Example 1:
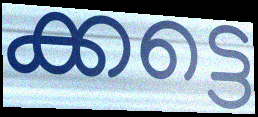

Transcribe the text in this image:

ക്കട്ടെ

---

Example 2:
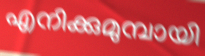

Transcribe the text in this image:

എനിക്കുമുമ്പായി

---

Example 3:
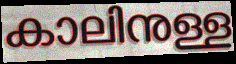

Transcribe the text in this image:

കാലിനുള്ള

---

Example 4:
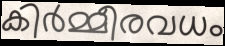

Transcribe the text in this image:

കിർമ്മീരവധം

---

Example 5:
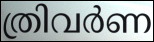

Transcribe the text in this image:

ത്രിവർണ